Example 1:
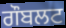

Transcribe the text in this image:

ਗੌਬਲਟ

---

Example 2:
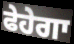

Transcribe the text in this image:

ਫੇਹੇਗਾ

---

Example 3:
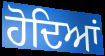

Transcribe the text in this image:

ਹੋਦਿਆਂ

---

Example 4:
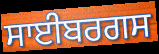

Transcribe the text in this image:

ਸਾਈਬਰਗਸ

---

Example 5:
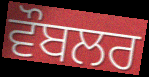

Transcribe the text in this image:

ਵੌਬਲਰ